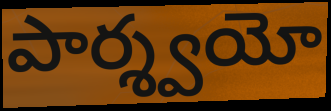
పార్శ్వయో